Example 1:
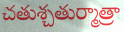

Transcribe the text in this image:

చతుశ్చతుర్మాత్రా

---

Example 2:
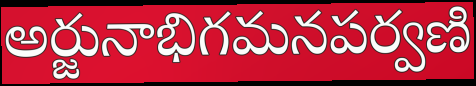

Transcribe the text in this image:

అర్జునాభిగమనపర్వణి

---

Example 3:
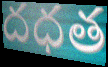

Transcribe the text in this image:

దధత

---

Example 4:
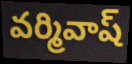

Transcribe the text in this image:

వర్మివాష్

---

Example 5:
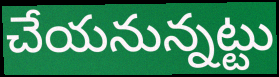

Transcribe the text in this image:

చేయనున్నట్టు